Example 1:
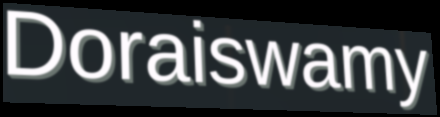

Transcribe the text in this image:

Doraiswamy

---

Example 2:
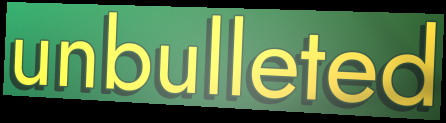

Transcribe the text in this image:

unbulleted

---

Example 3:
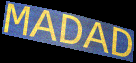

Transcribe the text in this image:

MADAD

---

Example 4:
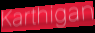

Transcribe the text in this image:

Karthigan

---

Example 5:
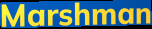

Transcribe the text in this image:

Marshman